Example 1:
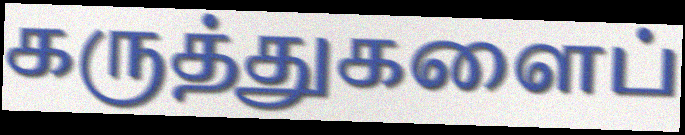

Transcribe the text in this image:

கருத்துகளைப்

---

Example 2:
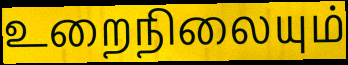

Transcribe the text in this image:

உறைநிலையும்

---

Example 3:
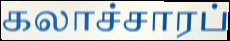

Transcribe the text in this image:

கலாச்சாரப்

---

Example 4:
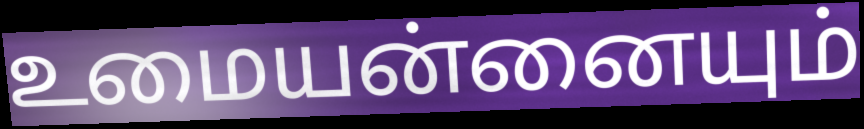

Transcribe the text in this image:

உமையன்னையும்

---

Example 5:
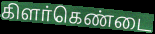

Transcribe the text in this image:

கிளர்கெண்டை